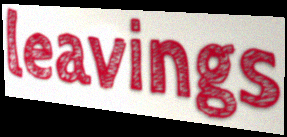
leavings